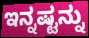
ಇನ್ನಷ್ಟನ್ನು